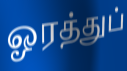
ஓரத்துப்